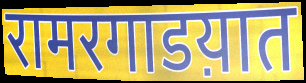
रामरगाडय़ात